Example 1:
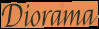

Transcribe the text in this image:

Diorama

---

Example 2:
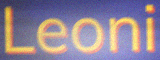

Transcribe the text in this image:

Leoni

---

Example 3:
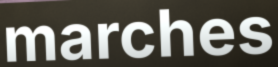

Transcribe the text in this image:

marches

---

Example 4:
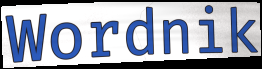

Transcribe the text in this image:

Wordnik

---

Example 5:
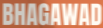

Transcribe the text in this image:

BHAGAWAD